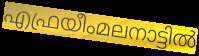
എഫ്രയീംമലനാട്ടിൽ